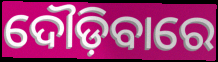
ଦୌଡ଼ିବାରେ